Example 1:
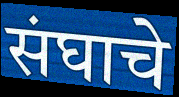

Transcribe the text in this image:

संघाचे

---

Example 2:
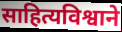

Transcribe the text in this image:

साहित्यविश्वाने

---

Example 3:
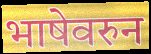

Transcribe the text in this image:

भाषेवरुन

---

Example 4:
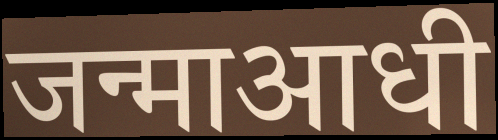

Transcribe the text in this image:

जन्माआधी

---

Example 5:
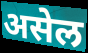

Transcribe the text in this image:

असेल